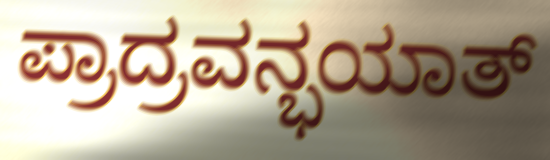
ಪ್ರಾದ್ರವನ್ಭಯಾತ್